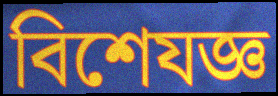
বিশেযজ্ঞ